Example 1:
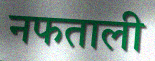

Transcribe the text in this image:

नफताली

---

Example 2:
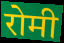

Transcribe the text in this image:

रोमी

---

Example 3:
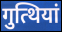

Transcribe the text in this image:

गुत्थियां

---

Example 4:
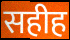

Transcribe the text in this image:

सहीह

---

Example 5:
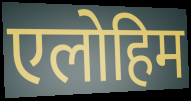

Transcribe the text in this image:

एलोहिम